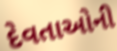
દેવતાઓની